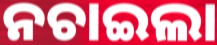
ନଚାଇଲା